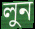
লুন